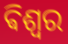
ଵିଶ୍ୱର